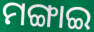
ମଙ୍ଗାଇ